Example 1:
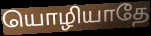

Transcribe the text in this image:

யொழியாதே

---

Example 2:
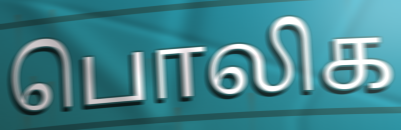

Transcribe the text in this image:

பொலிக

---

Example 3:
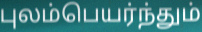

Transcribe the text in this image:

புலம்பெயர்ந்தும்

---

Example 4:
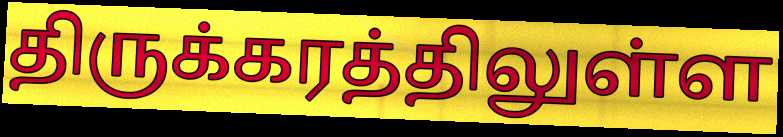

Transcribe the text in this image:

திருக்கரத்திலுள்ள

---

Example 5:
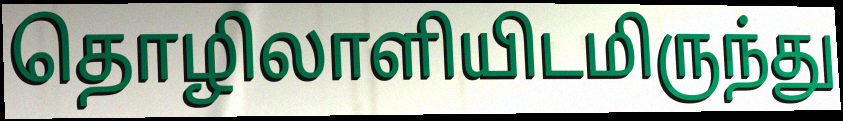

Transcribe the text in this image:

தொழிலாளியிடமிருந்து